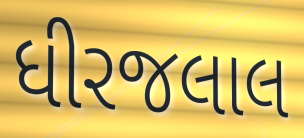
ધીરજલાલ